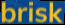
brisk